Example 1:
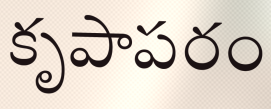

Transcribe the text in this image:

కృపాపరం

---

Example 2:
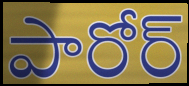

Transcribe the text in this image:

పారోర్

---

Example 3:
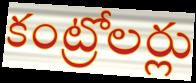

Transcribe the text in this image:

కంట్రోలర్లు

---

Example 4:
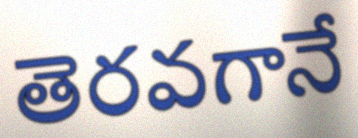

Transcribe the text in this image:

తెరవగానే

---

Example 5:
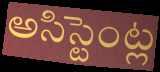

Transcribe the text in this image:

అసిస్టెంట్ల